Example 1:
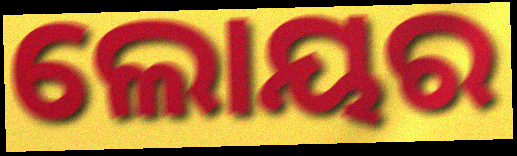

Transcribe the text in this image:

ଲୋୟର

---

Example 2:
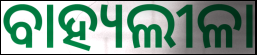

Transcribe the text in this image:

ବାହ୍ୟଲୀଳା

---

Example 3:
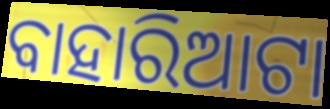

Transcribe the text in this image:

ବାହାରିଆଟା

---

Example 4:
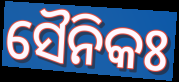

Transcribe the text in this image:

ସୈନିକଃ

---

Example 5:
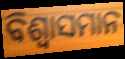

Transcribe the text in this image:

ବିଶ୍ଵାସମାନ